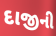
દાજીની